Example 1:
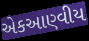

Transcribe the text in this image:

એકઆણ્વીય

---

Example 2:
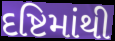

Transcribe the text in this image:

દષ્ટિમાંથી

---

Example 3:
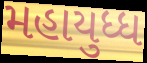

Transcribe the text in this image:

મહાયુધ્ધ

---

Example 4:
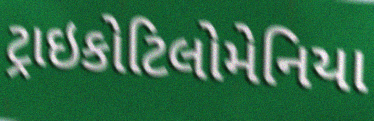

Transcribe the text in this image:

ટ્રાઇકોટિલોમેનિયા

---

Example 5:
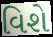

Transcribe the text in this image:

વિશે